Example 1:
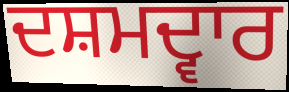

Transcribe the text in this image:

ਦਸ਼ਮਦ੍ਵਾਰ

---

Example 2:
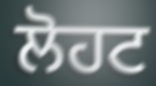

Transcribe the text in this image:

ਲੋਹਟ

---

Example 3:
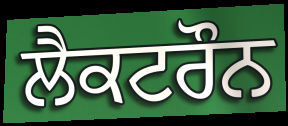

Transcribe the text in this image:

ਲੈਕਟਰੌਨ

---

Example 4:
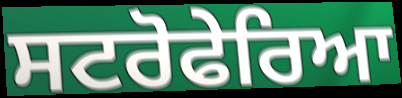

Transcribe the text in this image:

ਸਟਰੋਫੇਰਿਆ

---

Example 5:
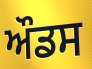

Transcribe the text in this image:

ਔਡਸ